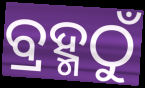
ବ୍ରହ୍ମଠୁଁ